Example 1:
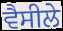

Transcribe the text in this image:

ਵੈਸੀਲੇ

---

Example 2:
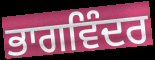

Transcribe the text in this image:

ਭਾਗਵਿੰਦਰ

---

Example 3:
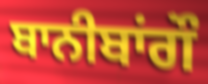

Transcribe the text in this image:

ਬਾਨੀਬਾਂਗੌ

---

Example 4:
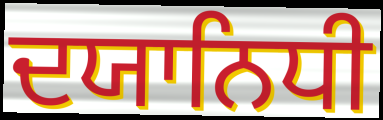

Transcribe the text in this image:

ਦਯਾਨਿਧੀ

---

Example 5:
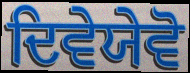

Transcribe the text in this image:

ਦਿਵੇਯੇਵੋ